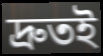
দ্রুতই